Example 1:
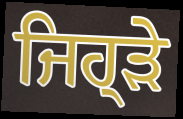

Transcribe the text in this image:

ਜਿਹ੍ੜੇ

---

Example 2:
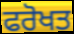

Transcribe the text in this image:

ਫਰੋਖਤ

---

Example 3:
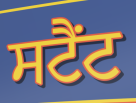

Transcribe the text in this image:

ਸਟੈਂਟ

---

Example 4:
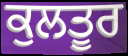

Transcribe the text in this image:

ਕੁਲਤੂਰ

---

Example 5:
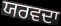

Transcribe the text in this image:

ਯਰਵਦਾ